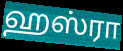
ஹஸ்ரா